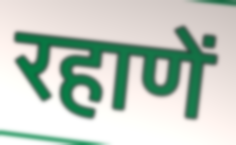
रहाणें